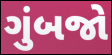
ગુંબજો